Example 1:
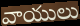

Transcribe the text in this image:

వాయులు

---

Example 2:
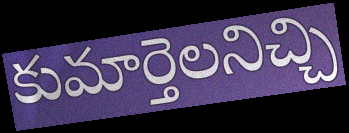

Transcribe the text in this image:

కుమార్తెలనిచ్చి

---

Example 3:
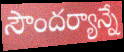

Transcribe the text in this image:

సౌందర్యాన్నే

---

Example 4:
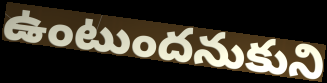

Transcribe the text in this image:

ఉంటుందనుకుని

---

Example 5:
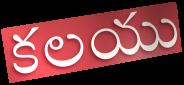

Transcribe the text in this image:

కలయు